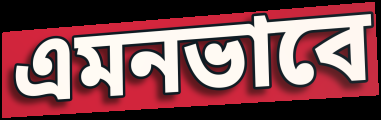
এমনভাবে